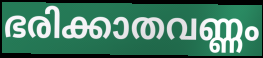
ഭരിക്കാതവണ്ണം